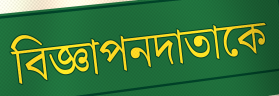
বিজ্ঞাপনদাতাকে